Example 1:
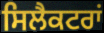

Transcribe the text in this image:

ਸਿਲੈਕਟਰਾਂ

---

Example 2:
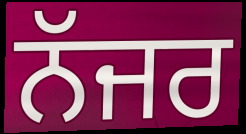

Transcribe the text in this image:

ਨੱਜਰ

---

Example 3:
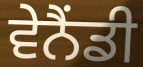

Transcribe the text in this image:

ਵੇਨੈਂਡੀ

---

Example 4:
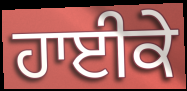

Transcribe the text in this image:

ਹਾਈਕੇ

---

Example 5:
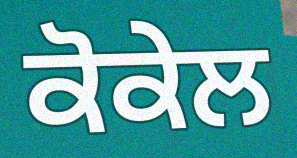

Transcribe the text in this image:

ਕੋਕੇਲ